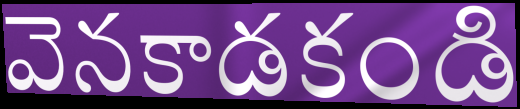
వెనకాడకండి